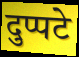
दुप्पटे